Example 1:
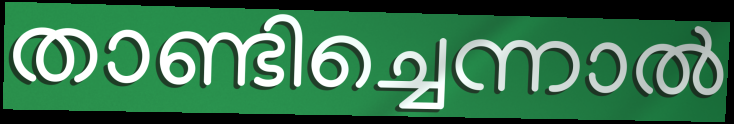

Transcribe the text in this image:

താണ്ടിച്ചെന്നാൽ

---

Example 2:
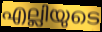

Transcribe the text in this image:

എല്ലിയുടെ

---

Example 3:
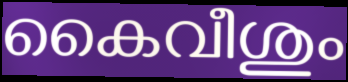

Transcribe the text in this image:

കൈവീശും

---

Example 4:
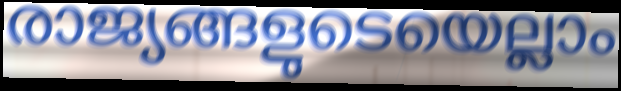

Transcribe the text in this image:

രാജ്യങ്ങളുടെയെല്ലാം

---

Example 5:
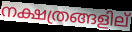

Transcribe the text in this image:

നക്ഷത്രങ്ങളില്